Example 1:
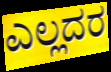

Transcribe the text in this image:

ಎಲ್ಲದರ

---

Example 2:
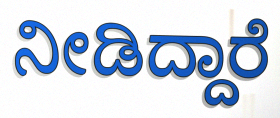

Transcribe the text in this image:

ನೀಡಿದ್ದಾರೆ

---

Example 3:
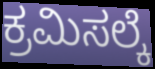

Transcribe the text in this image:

ಕ್ರಮಿಸಲ್ಕೆ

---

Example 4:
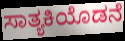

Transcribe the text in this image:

ಸಾತ್ಯಕಿಯೊಡನೆ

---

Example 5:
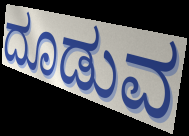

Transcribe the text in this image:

ದೂಡುವ